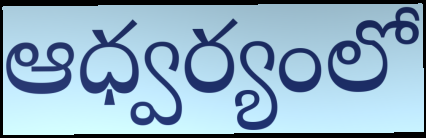
ఆధ్వర్యంలో